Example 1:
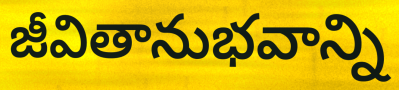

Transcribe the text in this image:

జీవితానుభవాన్ని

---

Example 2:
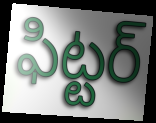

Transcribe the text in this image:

ఫిట్టర్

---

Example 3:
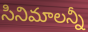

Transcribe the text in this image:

సినిమాలన్నీ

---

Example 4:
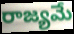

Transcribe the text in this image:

రాజ్యమే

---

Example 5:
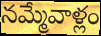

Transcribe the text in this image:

నమ్మేవాళ్లం